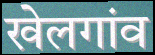
खेलगांव